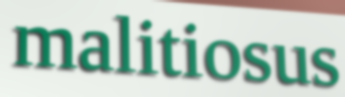
malitiosus